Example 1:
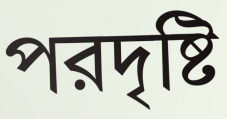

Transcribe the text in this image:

পরদৃষ্টি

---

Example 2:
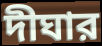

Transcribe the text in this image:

দীঘার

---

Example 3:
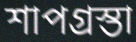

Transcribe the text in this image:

শাপগ্রস্তা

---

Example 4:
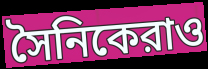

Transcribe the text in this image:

সৈনিকেরাও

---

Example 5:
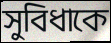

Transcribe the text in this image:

সুবিধাকে